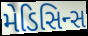
મેડિસિન્સ